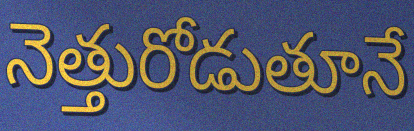
నెత్తురోడుతూనే